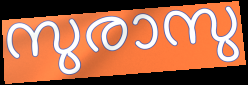
സുരാസു